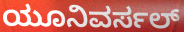
ಯೂನಿವರ್ಸಲ್